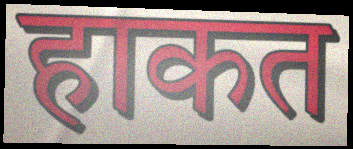
हाकत